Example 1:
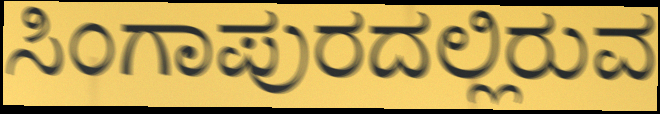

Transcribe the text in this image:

ಸಿಂಗಾಪುರದಲ್ಲಿರುವ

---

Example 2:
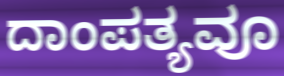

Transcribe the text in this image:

ದಾಂಪತ್ಯವೂ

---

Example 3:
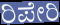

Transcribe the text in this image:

ರಿಪೇರಿ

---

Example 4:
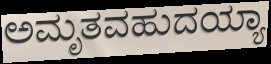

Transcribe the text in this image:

ಅಮೃತವಹುದಯ್ಯಾ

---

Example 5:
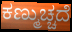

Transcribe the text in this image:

ಕಣ್ಮುಚ್ಚದೆ